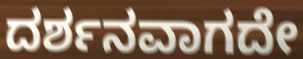
ದರ್ಶನವಾಗದೇ